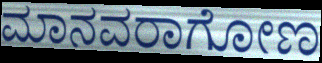
ಮಾನವರಾಗೋಣ